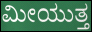
ಮೀಯುತ್ತ